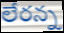
లేరన్న